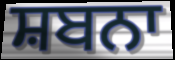
ਸ਼ਬਨਾ